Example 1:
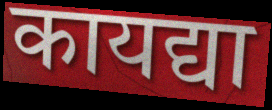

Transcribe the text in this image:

कायद्या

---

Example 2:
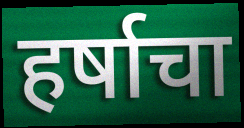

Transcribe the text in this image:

हर्षाचा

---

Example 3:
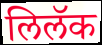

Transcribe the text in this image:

लिलॅक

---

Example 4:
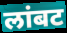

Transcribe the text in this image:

लांबट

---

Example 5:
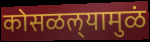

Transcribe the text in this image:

कोसळल्यामुळं